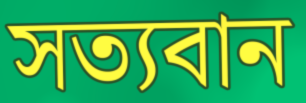
সত্যবান